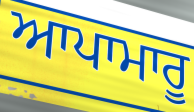
ਆਪਾਮਾਰੂ